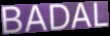
BADAL